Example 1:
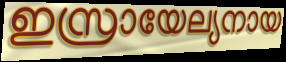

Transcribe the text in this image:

ഇസ്രായേല്യനായ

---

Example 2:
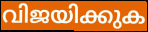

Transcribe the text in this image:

വിജയിക്കുക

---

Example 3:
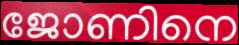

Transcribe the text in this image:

ജോണിനെ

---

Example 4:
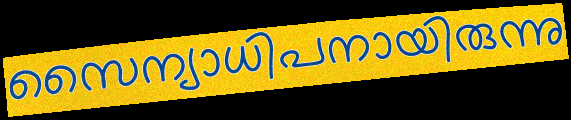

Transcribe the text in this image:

സൈന്യാധിപനായിരുന്നു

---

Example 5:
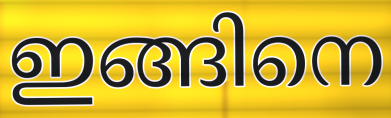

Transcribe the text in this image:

ഇങ്ങിനെ